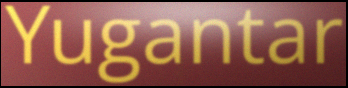
Yugantar